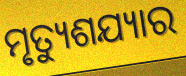
ମୃତ୍ୟୁଶଯ୍ୟାର